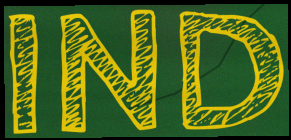
IND